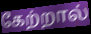
கேற்றால்